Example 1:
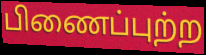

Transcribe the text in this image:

பிணைப்புற்ற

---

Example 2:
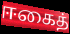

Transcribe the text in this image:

ஈகைத்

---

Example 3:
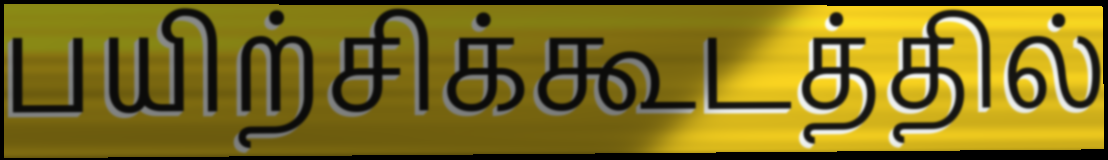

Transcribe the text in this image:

பயிற்சிக்கூடத்தில்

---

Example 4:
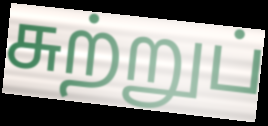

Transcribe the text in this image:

சுற்றுப்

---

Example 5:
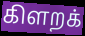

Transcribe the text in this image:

கிளறக்